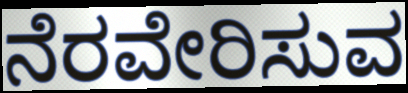
ನೆರವೇರಿಸುವ